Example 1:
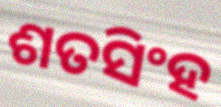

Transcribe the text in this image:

ଶତସିଂହ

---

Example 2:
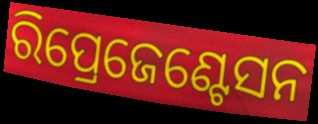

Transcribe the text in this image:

ରିପ୍ରେଜେଣ୍ଟେସନ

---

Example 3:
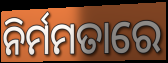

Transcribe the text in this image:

ନିର୍ମମତାରେ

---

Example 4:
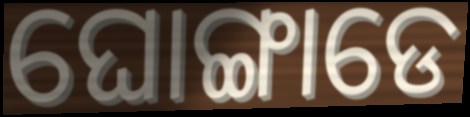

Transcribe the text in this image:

ଘୋଙ୍ଗାଡେ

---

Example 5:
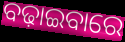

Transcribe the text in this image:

ବଢ଼ାଇବାରେ